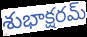
శుభాక్షరమ్